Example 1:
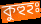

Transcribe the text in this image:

কুহুহঃ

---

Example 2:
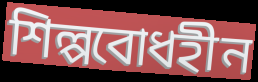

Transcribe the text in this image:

শিল্পবোধহীন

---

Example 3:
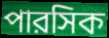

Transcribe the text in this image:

পারসিক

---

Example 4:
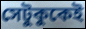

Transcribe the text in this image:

সেটুকুকেই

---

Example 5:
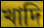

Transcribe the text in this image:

খাদি